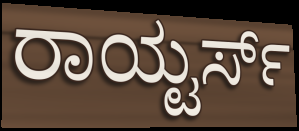
ರಾಯ್ಟರ್ಸ್